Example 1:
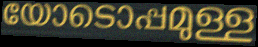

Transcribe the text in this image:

യോടൊപ്പമുള്ള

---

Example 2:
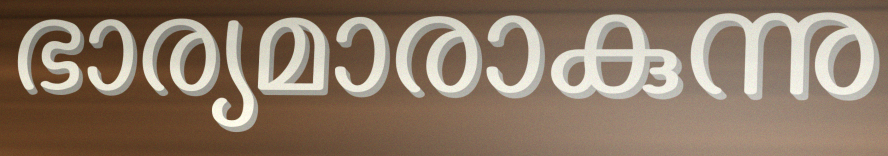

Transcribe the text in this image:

ഭാര്യമാരാകുന്നു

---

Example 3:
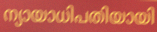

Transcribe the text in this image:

ന്യായാധിപതിയായി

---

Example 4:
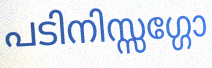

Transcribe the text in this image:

പടിനിസ്സഗ്ഗോ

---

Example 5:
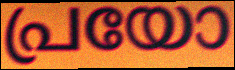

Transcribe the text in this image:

പ്രയോ